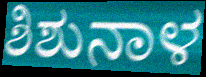
ಶಿಶುನಾಳ